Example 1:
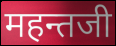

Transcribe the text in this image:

महन्तजी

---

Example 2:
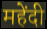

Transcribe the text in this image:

महेंदी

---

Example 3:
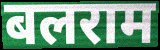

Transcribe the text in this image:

बलराम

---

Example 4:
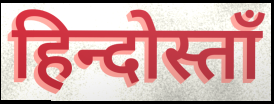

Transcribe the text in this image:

हिन्दोस्ताँ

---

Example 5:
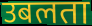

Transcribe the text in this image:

उबलता